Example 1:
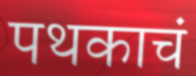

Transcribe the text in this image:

पथकाचं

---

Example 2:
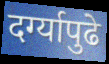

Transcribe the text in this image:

दर्ग्यापुढे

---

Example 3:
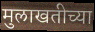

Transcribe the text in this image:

मुलाखतीच्या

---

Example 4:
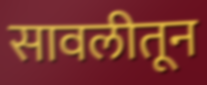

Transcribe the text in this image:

सावलीतून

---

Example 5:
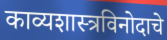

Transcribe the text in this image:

काव्यशास्त्रविनोदाचे